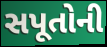
સપૂતોની